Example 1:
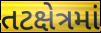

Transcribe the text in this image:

તટક્ષેત્રમાં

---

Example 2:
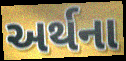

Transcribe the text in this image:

અર્થના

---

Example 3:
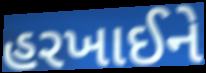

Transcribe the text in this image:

હરખાઈને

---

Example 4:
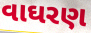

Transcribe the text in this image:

વાઘરણ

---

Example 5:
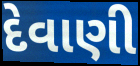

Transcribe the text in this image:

દેવાણી